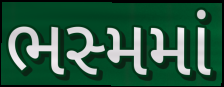
ભસ્મમાં